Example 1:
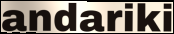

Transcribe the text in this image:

andariki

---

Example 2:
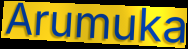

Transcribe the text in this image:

Arumuka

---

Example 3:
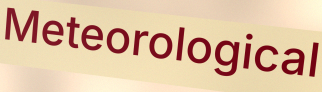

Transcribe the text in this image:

Meteorological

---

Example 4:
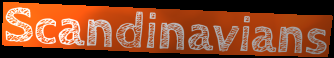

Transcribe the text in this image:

Scandinavians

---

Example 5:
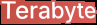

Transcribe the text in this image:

Terabyte